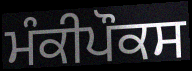
ਮੰਕੀਪੌਕਸ